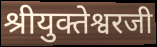
श्रीयुक्तेश्वरजी